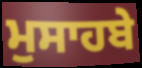
ਮੁਸਾਹਬੇ